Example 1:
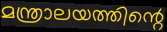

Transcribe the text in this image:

മന്ത്രാലയത്തിന്റെ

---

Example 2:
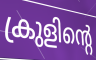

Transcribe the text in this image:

ക്രുളിന്റെ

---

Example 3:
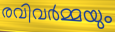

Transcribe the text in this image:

രവിവർമ്മയും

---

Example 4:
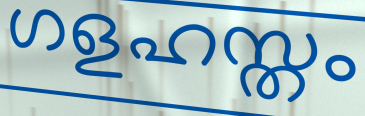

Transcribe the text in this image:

ഗളഹസ്തം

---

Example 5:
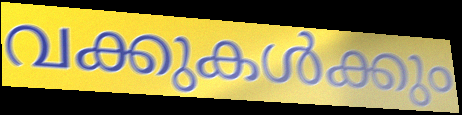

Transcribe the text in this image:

വക്കുകൾക്കും